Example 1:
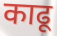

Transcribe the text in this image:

काढू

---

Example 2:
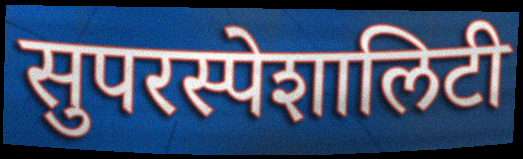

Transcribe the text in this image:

सुपरस्पेशालिटी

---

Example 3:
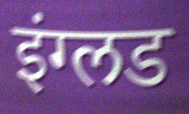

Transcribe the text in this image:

इंग्लड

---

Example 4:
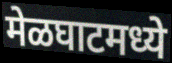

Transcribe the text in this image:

मेळघाटमध्ये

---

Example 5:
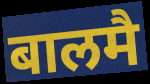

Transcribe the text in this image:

बालमै